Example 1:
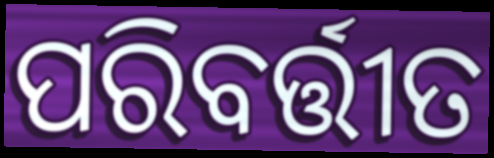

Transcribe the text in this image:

ପରିବର୍ତ୍ତୀତ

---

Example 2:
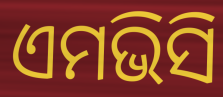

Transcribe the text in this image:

ଏମଭିସି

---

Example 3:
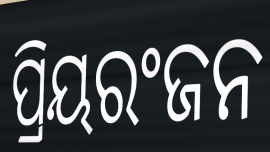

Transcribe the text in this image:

ପ୍ରିୟରଂଜନ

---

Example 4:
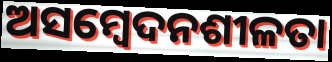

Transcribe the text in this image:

ଅସମ୍ବେଦନଶୀଳତା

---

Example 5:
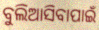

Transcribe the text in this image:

ବୁଲିଆସିବାପାଇଁ